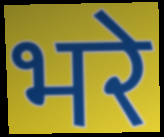
भरे